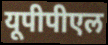
यूपीपीएल